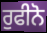
ਰੁਫੀਨੋ